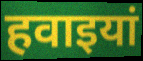
हवाइयां